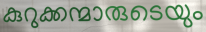
കുറുക്കന്മാരുടെയും